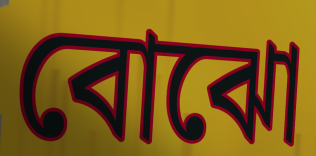
বোঝো